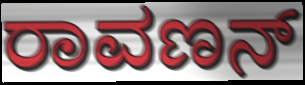
ರಾವಣನ್